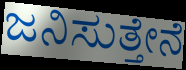
ಜನಿಸುತ್ತೇನೆ